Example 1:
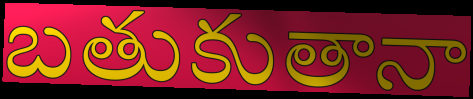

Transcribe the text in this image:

బతుకుతానా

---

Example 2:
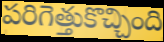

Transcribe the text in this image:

పరిగెత్తుకొచ్చింది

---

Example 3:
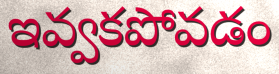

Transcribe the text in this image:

ఇవ్వకపోవడం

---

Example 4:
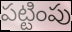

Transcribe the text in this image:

పట్టింపు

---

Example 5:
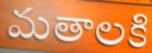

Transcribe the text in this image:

మతాలకి